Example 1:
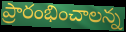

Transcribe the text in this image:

ప్రారంభించాలన్న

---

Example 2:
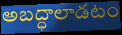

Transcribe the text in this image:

అబద్ధాలాడటం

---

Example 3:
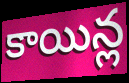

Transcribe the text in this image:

కాయిన్ల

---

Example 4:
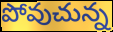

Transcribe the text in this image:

పోవుచున్న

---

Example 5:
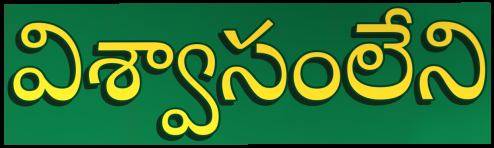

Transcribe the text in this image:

విశ్వాసంలేని